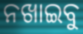
ନଖାଇବୁ